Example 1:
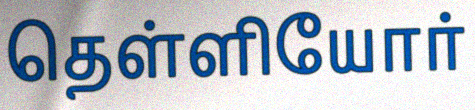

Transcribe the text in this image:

தெள்ளியோர்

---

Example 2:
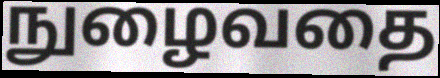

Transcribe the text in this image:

நுழைவதை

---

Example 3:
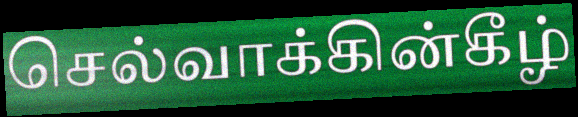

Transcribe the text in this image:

செல்வாக்கின்கீழ்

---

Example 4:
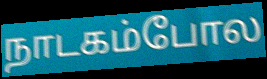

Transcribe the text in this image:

நாடகம்போல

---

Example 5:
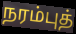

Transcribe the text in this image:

நரம்புத்